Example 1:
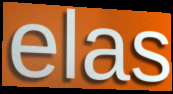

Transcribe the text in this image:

elas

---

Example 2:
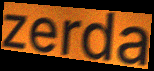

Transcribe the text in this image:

zerda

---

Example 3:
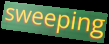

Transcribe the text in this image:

sweeping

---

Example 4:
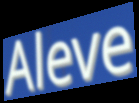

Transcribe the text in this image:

Aleve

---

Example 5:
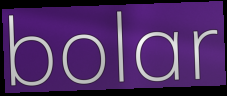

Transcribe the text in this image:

bolar